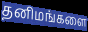
தனிமங்களை